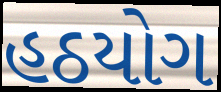
હઠયોગ